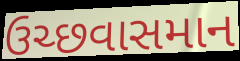
ઉચ્છવાસમાન